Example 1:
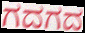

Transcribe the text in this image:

ಗದಗದ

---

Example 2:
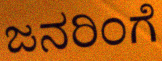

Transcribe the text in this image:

ಜನರಿಂಗೆ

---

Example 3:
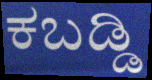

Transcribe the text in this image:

ಕಬಡ್ಡಿ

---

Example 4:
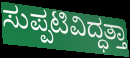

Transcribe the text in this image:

ಸುಪ್ಪಟಿವಿದ್ಧತ್ತಾ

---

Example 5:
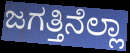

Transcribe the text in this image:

ಜಗತ್ತಿನೆಲ್ಲಾ